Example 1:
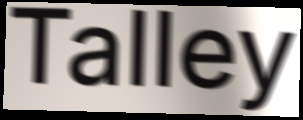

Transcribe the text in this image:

Talley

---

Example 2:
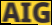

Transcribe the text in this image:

AIG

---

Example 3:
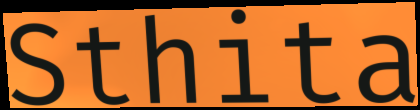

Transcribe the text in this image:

Sthita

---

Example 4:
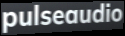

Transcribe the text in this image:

pulseaudio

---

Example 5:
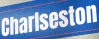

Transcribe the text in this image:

Charlseston